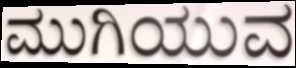
ಮುಗಿಯುವ